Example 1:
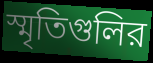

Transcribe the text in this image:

স্মৃতিগুলির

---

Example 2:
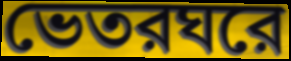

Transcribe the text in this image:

ভেতরঘরে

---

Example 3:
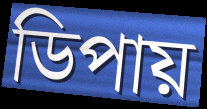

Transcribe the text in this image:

ডিপায়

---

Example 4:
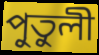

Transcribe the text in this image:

পুতুলী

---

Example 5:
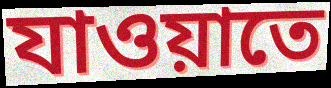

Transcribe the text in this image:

যাওয়াতে